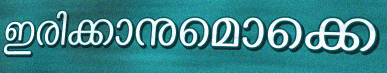
ഇരിക്കാനുമൊക്കെ